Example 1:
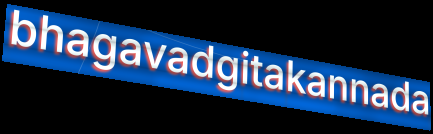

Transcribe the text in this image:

bhagavadgitakannada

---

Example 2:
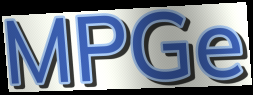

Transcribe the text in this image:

MPGe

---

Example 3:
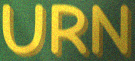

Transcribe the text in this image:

URN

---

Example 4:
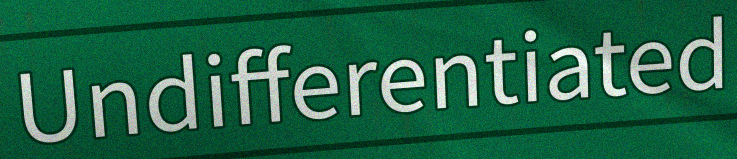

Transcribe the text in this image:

Undifferentiated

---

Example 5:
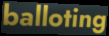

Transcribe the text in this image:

balloting